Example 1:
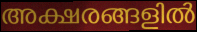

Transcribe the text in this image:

അക്ഷരങ്ങളിൽ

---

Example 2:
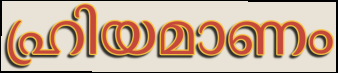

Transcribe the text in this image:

ഹ്രിയമാണം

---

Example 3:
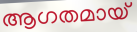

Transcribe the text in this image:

ആഗതമായ്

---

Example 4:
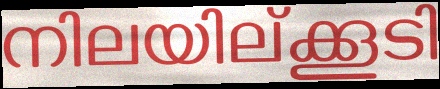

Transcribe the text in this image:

നിലയില്ക്കൂടി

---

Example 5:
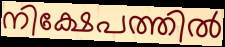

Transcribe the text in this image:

നിക്ഷേപത്തിൽ